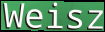
Weisz